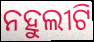
ନହୁଲୀଟି